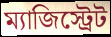
ম্যাজিস্ট্রেট